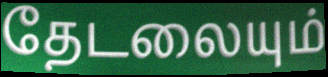
தேடலையும்